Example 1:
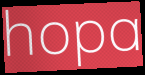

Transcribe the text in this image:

hopa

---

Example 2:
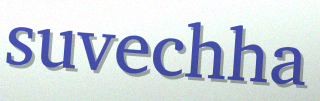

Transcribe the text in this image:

suvechha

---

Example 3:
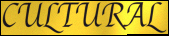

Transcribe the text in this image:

CULTURAL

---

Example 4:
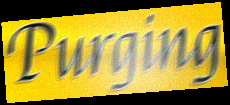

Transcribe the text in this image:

Purging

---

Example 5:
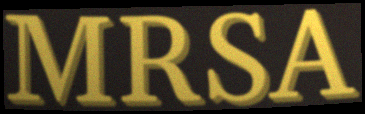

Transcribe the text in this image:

MRSA